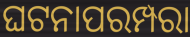
ଘଟନାପରମ୍ପରା